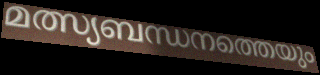
മത്സ്യബന്ധനത്തെയും